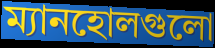
ম্যানহোলগুলো